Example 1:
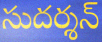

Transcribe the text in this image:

సుదర్శన్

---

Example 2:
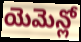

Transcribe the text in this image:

యెమెన్లో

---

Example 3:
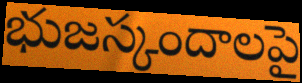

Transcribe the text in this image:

భుజస్కందాలపై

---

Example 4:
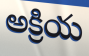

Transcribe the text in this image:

అక్రియ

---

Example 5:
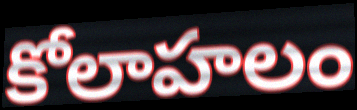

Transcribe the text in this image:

కోలాహలం